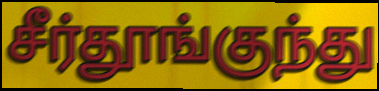
சீர்தூங்குந்து